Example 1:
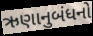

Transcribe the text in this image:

ઋણાનુબંધનો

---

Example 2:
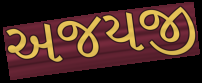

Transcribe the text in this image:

અજયજી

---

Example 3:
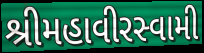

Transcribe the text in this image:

શ્રીમહાવીરસ્વામી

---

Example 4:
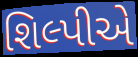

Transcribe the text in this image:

શિલ્પીએ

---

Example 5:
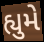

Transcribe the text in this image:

હ્યુમે